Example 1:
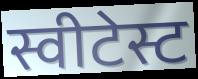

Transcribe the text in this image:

स्वीटेस्ट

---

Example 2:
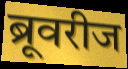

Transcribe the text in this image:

ब्रूवरीज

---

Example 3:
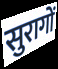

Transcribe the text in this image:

सुरागों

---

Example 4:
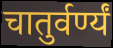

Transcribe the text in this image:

चातुर्वर्ण्यं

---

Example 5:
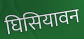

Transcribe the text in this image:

घिसियावन